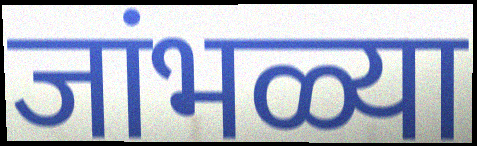
जांभळ्या